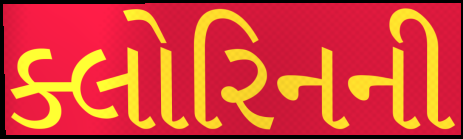
ક્લોરિનની